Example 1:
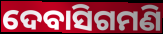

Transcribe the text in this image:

ଦେବାସିଗମଣି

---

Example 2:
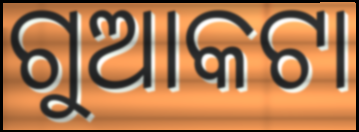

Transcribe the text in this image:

ଗୁଆକଟା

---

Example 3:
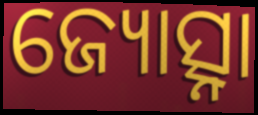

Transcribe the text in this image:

ଜ୍ୟୋତ୍ସ୍ନା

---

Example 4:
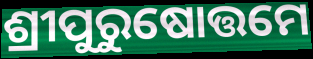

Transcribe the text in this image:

ଶ୍ରୀପୁରୁଷୋତ୍ତମେ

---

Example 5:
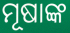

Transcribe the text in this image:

ମୂଷାଙ୍କ